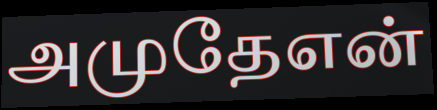
அமுதேஎன்